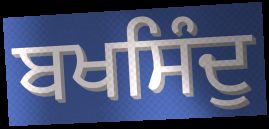
ਬਖਸਿੰਦੁ